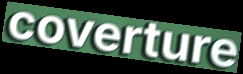
coverture